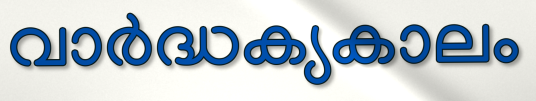
വാർദ്ധക്യകാലം